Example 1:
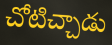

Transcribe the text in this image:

చోటిచ్చాడు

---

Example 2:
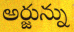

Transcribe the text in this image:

అర్జున్ను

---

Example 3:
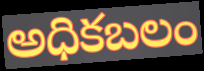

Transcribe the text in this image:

అధికబలం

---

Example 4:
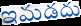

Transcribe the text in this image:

ఇమడదు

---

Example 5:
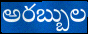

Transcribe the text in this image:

అరబ్బుల